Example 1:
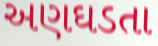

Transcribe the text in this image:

અણઘડતા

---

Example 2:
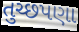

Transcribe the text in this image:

તુચ્છપણા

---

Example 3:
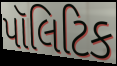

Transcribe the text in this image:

પૉલિટિક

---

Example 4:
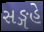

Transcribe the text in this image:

સઙ્ગહે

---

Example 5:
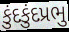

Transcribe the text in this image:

કુંદકુંદપ્રભુ